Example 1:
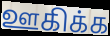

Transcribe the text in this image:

ஊகிக்க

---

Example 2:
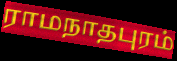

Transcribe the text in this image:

ராமநாதபுரம்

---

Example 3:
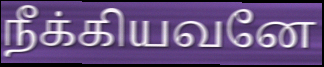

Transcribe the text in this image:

நீக்கியவனே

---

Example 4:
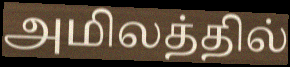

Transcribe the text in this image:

அமிலத்தில்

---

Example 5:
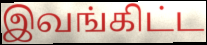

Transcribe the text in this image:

இவங்கிட்ட